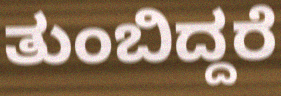
ತುಂಬಿದ್ದರೆ